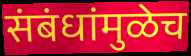
संबंधांमुळेच